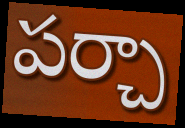
పర్చా